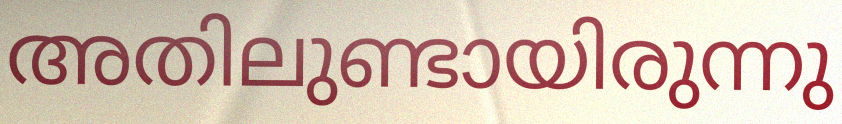
അതിലുണ്ടായിരുന്നു